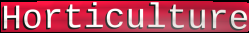
Horticulture